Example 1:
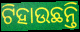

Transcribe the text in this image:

ଟିହାଉଛନ୍ତି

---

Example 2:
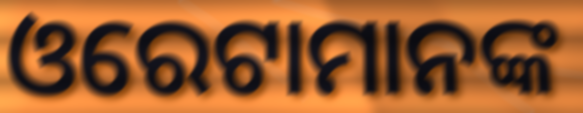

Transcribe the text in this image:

ଓରେଟାମାନଙ୍କ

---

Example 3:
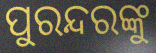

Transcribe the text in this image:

ପୁରନ୍ଦରଙ୍କୁ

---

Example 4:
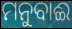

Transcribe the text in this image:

ମନୁବାଈ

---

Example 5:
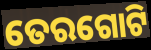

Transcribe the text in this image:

ତେରଗୋଟି